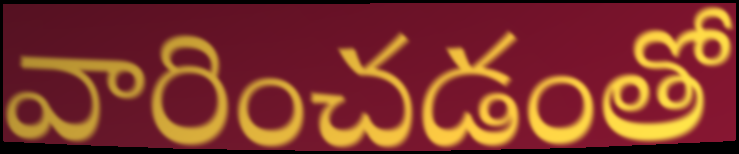
వారించడంతో